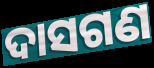
ଦାସଗଣ